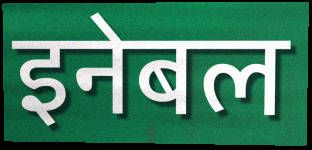
इनेबल